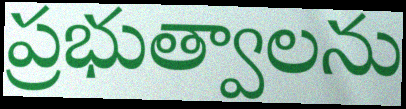
ప్రభుత్వాలను